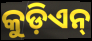
କୁଡ଼ିଏନ୍